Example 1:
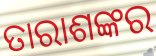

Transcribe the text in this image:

ତାରାଶଙ୍କର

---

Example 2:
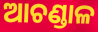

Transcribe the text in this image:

ଆଚଣ୍ଡାଳ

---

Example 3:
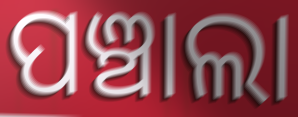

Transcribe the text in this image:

ପଞ୍ଚାଲା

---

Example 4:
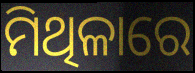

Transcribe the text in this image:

ମିଥିଳାରେ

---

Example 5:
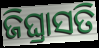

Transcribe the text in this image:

ଜିଘ୍ରାସତି